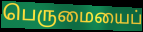
பெருமையைப்